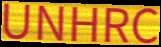
UNHRC